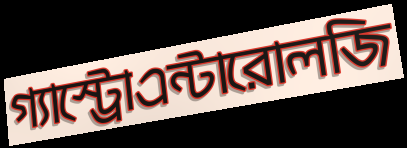
গ্যাস্ট্রোএন্টারোলজি